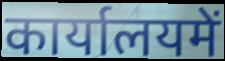
कार्यालयमें